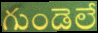
గుండెలే